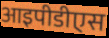
आइपीडीएस